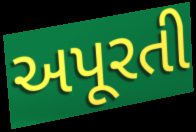
અપૂરતી